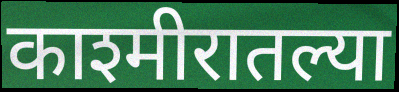
काश्मीरातल्या